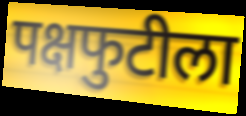
पक्षफुटीला